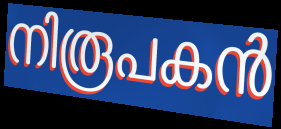
നിരൂപകൻ